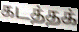
கடத்தக்